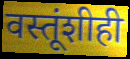
वस्तूंशीही